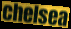
chelsea